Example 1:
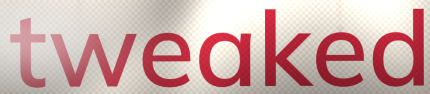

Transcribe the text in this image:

tweaked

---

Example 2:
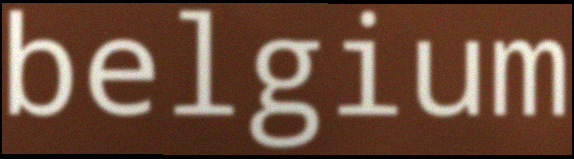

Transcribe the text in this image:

belgium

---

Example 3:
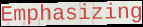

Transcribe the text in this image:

Emphasizing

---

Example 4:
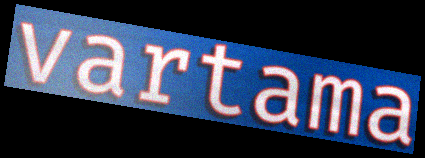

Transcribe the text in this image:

vartama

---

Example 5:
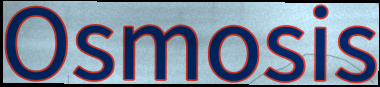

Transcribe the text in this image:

Osmosis